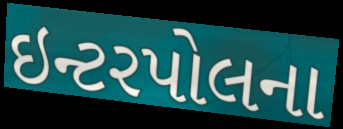
ઇન્ટરપોલના